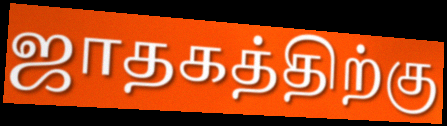
ஜாதகத்திற்கு